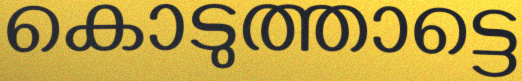
കൊടുത്താട്ടെ